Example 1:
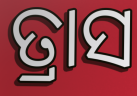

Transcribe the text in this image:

ତ୍ରାସ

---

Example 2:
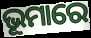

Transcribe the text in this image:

ଭୂମାରେ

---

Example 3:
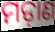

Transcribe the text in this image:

ମଡ଼ାଣ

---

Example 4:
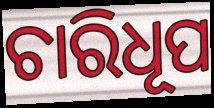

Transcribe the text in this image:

ଚାରିଧୂପ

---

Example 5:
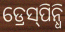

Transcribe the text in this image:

ଡ୍ରେସ୍‌ପିନ୍ଧି